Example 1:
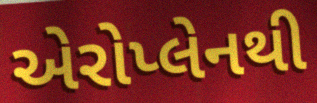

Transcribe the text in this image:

એરોપ્લેનથી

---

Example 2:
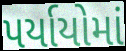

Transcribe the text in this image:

પર્યાયોમાં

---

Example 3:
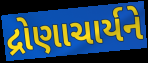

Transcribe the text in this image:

દ્રોણાચાર્યને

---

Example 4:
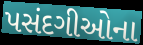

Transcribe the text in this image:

પસંદગીઓના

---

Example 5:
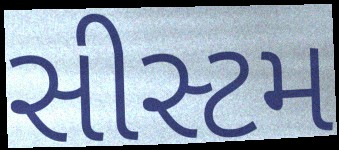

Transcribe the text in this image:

સીસ્ટમ